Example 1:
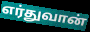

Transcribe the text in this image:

எர்துவான்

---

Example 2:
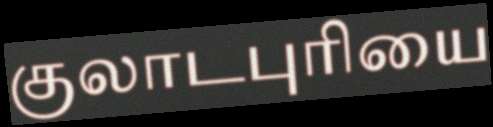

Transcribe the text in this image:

குலாடபுரியை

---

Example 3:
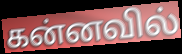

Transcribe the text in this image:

கன்னவில்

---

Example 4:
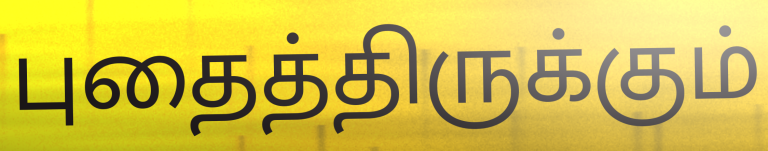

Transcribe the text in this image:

புதைத்திருக்கும்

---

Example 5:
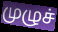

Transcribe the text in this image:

முழுச்